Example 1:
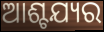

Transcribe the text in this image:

ଆଶ୍ଚଯ୍ୟର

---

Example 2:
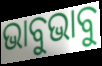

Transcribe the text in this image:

ଭାବୁଭାବୁ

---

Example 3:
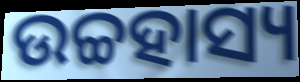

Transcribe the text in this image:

ଉଚ୍ଚହାସ୍ୟ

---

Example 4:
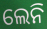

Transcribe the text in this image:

ଲେନି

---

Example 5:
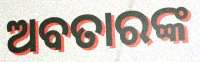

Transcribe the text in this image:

ଅବତାରଙ୍କ